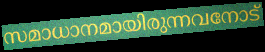
സമാധാനമായിരുന്നവനോട്